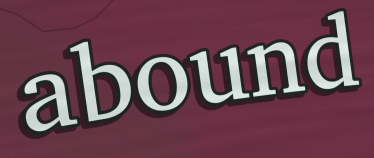
abound